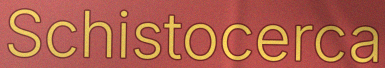
Schistocerca